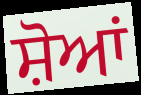
ਸ਼ੋਆਂ